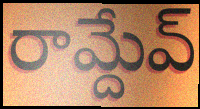
రామ్దేవ్